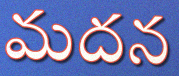
మదన